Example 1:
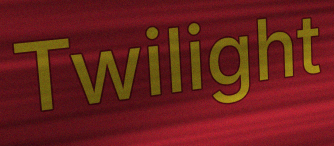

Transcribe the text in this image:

Twilight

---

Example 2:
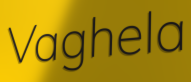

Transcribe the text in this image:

Vaghela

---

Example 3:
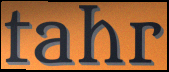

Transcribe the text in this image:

tahr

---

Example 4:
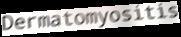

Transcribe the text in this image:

Dermatomyositis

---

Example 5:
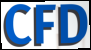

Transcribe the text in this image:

CFD